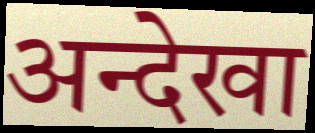
अन्देखा